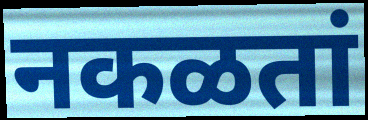
नकळतां